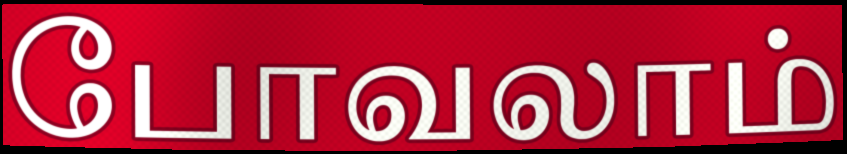
போவலாம்